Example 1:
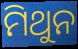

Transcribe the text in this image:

ମିଥୁନ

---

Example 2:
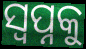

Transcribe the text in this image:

ସ୍ବପ୍ନକୁ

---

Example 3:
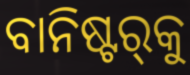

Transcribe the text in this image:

ବାନିଷ୍ଟର୍‍କୁ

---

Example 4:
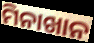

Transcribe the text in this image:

ମିନାଖାନ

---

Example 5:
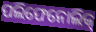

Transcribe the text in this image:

ପଲିଫେନୋଲିକ୍